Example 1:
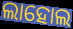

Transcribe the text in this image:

ଲାହୋଲ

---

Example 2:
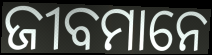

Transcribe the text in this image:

ଜୀବମାନେ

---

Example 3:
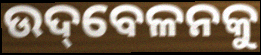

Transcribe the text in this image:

ଉଦ୍‌ବେଳନକୁ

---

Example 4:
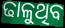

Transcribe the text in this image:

ଢାଳୁଥିବ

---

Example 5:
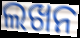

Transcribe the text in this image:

ଲଖନ